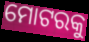
ମୋଟରକୁ